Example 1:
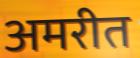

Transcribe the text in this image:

अमरीत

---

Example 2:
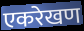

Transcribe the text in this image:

एकरेखण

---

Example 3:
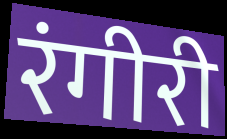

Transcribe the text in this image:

रंगीरी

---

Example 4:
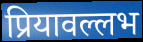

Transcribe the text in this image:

प्रियावल्लभ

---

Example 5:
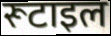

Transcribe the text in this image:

रूटाइल